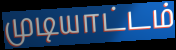
முடியாட்டம்